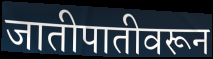
जातीपातीवरून